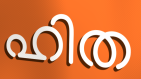
ഹിത